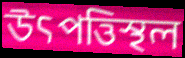
উৎপত্তিস্থল